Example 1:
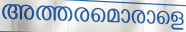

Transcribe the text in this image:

അത്തരമൊരാളെ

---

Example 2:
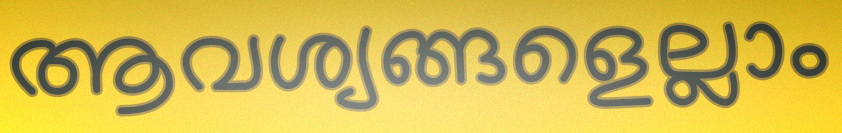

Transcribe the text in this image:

ആവശ്യങ്ങളെല്ലാം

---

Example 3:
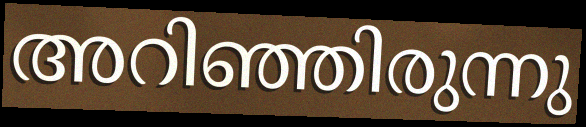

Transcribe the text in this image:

അറിഞ്ഞിരുന്നു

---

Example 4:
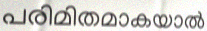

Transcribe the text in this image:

പരിമിതമാകയാൽ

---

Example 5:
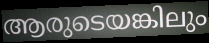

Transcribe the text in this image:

ആരുടെയങ്കിലും